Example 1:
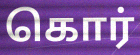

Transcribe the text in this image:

கொர்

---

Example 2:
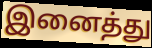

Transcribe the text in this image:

இனைத்து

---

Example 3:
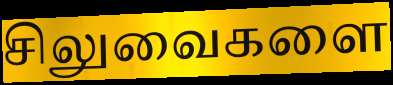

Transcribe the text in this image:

சிலுவைகளை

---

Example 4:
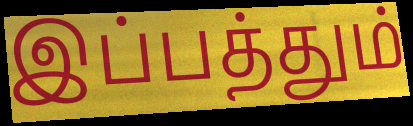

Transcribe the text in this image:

இப்பத்தும்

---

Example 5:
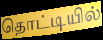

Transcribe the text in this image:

தொட்டியில்